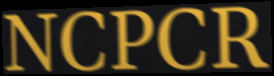
NCPCR